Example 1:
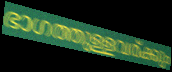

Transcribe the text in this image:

ഭാഗത്തുള്ളവര്ക്കും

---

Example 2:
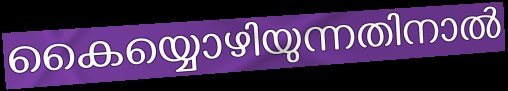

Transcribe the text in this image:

കൈയ്യൊഴിയുന്നതിനാൽ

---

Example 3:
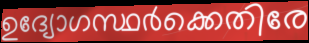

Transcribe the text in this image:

ഉദ്യോഗസ്ഥർക്കെതിരേ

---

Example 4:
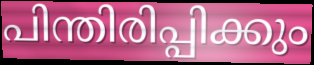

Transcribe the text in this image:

പിന്തിരിപ്പിക്കും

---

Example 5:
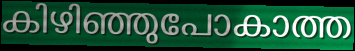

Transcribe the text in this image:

കിഴിഞ്ഞുപോകാത്ത